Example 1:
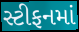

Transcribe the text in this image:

સ્ટીફનમાં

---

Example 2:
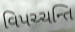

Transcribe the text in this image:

વિપચ્ચન્તિ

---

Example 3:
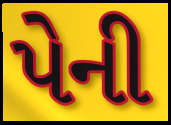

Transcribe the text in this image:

પેની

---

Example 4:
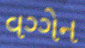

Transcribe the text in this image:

વગ્ગેન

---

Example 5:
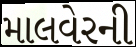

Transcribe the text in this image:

માલવેરની